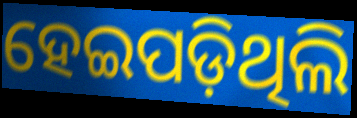
ହେଇପଡ଼ିଥିଲି